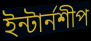
ইন্টার্নশীপ